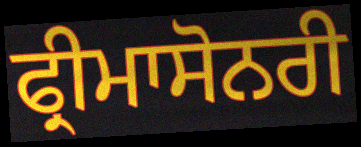
ਫ੍ਰੀਮਾਸੋਨਰੀ